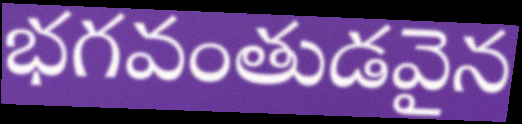
భగవంతుడవైన